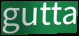
gutta